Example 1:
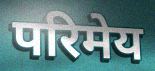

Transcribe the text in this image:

परिमेय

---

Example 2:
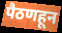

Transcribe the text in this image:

पैठणहून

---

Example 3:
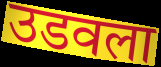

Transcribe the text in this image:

उडवला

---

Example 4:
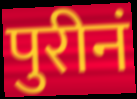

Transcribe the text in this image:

पुरीनं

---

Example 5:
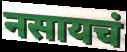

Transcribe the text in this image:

नसायचं